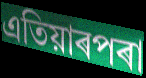
এতিয়াৰপৰা